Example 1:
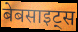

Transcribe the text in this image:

बेबसाइट्स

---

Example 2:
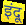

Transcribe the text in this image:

इंदू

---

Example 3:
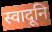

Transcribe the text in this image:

स्वादूनि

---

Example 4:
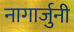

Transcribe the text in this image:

नागार्जुनी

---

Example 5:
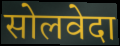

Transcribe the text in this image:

सोलवेदा